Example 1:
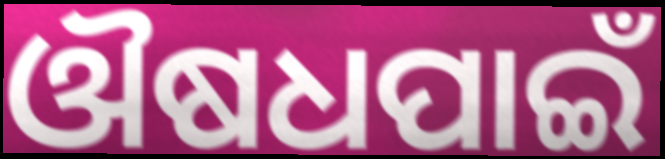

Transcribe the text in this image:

ଔଷଧପାଇଁ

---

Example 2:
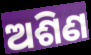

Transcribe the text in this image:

ଅଶିଣ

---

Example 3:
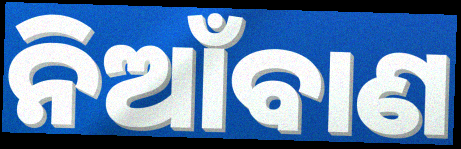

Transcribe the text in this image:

ନିଆଁବାଣ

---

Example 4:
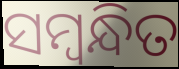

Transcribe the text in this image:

ସମ୍ଵନ୍ଧିତ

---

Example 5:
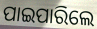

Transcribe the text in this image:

ପାଇପାରିଲେ